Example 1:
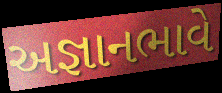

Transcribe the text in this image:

અજ્ઞાનભાવે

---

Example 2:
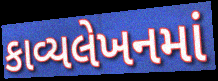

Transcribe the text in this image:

કાવ્યલેખનમાં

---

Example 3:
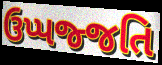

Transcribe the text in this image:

ઉપ્પજ્જતિ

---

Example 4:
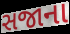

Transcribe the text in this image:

સજાના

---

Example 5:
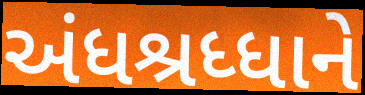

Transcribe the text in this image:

અંધશ્રધ્ધાને